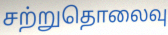
சற்றுதொலைவு